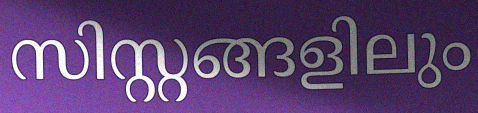
സിസ്റ്റങ്ങളിലും